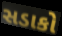
સડાકો